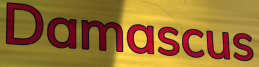
Damascus